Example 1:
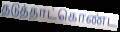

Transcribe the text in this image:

தடுத்தாட்கொண்ட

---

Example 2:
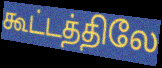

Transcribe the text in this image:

கூட்டத்திலே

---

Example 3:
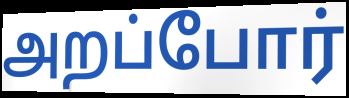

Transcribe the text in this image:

அறப்போர்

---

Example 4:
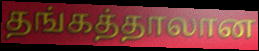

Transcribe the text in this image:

தங்கத்தாலான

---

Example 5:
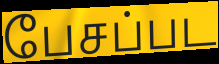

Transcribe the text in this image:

பேசப்பட